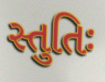
સ્તુતિઃ